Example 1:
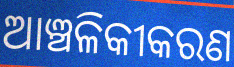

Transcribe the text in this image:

ଆଞ୍ଚଳିକୀକରଣ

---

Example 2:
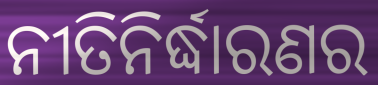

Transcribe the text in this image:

ନୀତିନିର୍ଦ୍ଧାରଣର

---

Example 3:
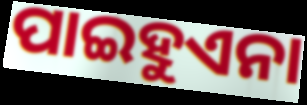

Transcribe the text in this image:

ପାଇହୁଏନା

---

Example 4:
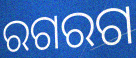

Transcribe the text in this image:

ରଗରଗ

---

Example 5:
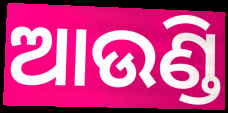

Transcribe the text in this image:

ଆଉଣ୍ଡି